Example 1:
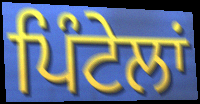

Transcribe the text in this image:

ਪਿੰਟੇਲਾਂ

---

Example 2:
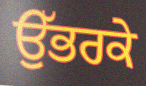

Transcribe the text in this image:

ਉੱਭਰਕੇ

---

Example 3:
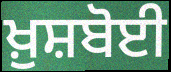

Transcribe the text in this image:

ਖ਼ੁਸ਼ਬੋਈ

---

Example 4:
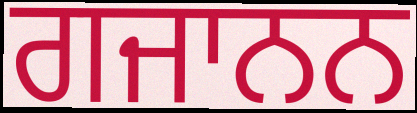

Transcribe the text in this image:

ਗਜਾਨਨ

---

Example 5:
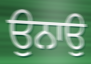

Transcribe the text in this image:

ਉਨਾਉ